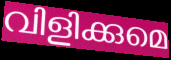
വിളിക്കുമെ